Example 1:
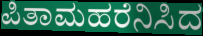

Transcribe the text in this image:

ಪಿತಾಮಹರೆನಿಸಿದ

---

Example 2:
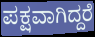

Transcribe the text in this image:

ಪಕ್ಷವಾಗಿದ್ದರೆ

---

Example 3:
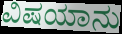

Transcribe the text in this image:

ವಿಷಯಾನು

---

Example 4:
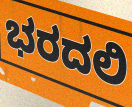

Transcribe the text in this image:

ಭರದಲಿ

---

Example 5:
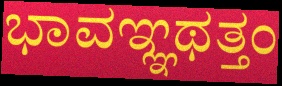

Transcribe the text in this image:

ಭಾವಞ್ಞಥತ್ತಂ